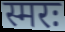
स्मरः